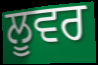
ਲੂਵਰ